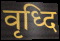
वृध्दि